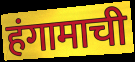
हंगामाची